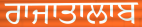
ਰਾਜਾਤਾਲਾਬ